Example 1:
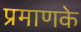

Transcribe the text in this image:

प्रमाणके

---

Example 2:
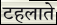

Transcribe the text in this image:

टहलाते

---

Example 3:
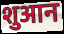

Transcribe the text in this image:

शुआन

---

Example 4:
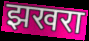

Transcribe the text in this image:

झखरा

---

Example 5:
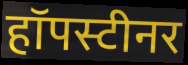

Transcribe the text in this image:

हॉपस्टीनर